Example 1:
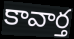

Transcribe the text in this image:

కావార్త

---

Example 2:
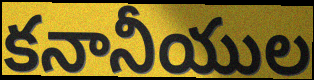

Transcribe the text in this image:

కనానీయుల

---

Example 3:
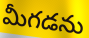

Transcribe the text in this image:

మీగడను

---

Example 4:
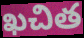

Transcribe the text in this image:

ఖచిత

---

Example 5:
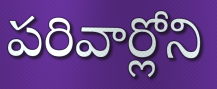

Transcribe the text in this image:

పరివార్లోని